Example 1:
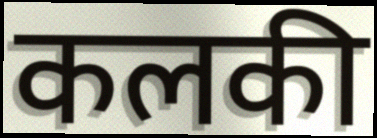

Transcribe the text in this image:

कलकी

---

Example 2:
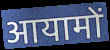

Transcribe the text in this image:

आयामों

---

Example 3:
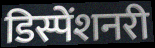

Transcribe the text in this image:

डिस्पेंशनरी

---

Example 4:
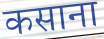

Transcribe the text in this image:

कसाना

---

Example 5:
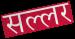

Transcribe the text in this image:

सल्लर